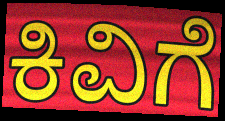
ಕಿವಿಗೆ